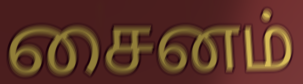
சைனம்